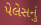
પેલેસનું